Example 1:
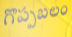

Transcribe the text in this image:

గొప్పబలం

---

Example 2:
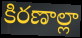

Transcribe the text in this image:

కిరణాల్లా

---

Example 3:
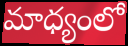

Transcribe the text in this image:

మాధ్యంలో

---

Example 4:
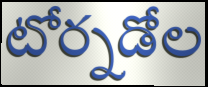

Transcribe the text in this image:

టోర్నడోల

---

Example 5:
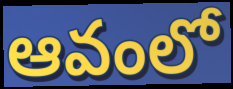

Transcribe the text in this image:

ఆవంలో